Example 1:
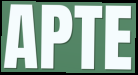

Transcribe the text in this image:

APTE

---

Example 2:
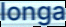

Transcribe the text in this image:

longa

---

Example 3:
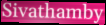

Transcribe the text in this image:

Sivathamby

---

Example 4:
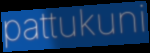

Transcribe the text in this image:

pattukuni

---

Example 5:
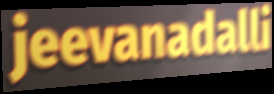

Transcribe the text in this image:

jeevanadalli